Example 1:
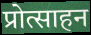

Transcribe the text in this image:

प्रोत्साहन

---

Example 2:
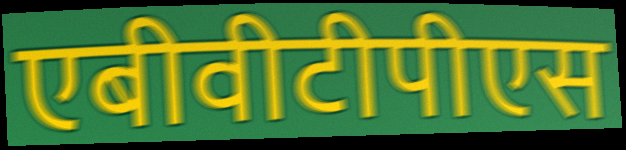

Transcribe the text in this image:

एबीवीटीपीएस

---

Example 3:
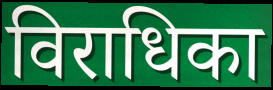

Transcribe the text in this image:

विराधिका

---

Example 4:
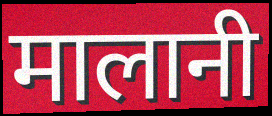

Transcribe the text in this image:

मालानी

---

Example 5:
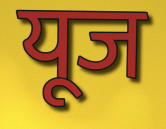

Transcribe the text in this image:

यूज